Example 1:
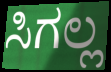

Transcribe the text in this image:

ಸಿಗಲ್ಲ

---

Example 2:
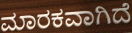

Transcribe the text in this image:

ಮಾರಕವಾಗಿದೆ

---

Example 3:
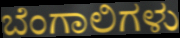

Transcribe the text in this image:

ಬೆಂಗಾಲಿಗಳು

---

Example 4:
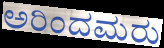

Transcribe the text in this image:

ಅರಿಂದಮರು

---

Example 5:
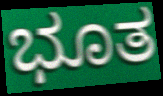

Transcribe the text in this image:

ಭೂತ